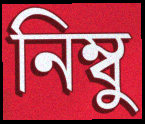
নিম্বু